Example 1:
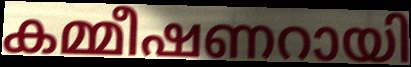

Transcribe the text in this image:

കമ്മീഷണറായി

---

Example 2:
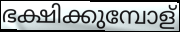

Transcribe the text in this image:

ഭക്ഷിക്കുമ്പോള്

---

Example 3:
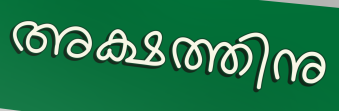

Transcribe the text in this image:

അക്ഷത്തിനു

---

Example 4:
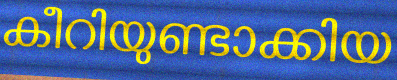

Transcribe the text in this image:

കീറിയുണ്ടാക്കിയ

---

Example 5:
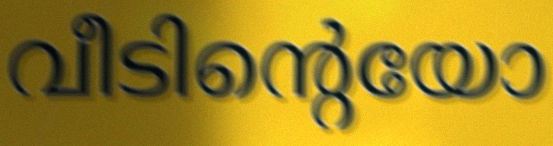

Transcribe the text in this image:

വീടിന്റെയോ